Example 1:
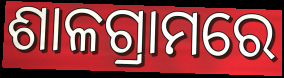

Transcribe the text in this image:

ଶାଳଗ୍ରାମରେ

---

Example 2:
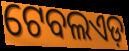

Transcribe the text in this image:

ଟେବଲଏଡ଼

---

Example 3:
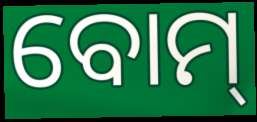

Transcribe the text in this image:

ବୋମ୍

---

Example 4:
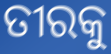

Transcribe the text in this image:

ତୀରକୁ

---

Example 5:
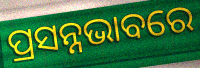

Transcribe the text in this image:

ପ୍ରସନ୍ନଭାବରେ